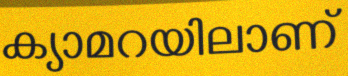
ക്യാമറയിലാണ്